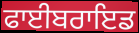
ਫਾਈਬਰਾਇਡ